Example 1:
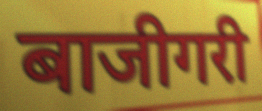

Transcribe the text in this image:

बाजीगरी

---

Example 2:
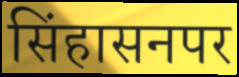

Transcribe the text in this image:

सिंहासनपर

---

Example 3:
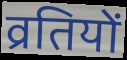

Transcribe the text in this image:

व्रतियों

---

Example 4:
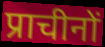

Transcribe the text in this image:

प्राचीनों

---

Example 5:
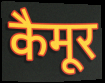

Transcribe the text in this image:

कैमूर